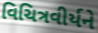
વિચિત્રવીર્યને